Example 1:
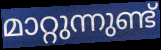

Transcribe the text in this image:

മാറ്റുന്നുണ്ട്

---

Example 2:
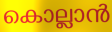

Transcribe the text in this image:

കൊല്ലാൻ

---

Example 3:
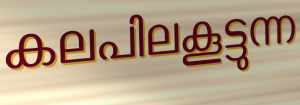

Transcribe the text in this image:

കലപിലകൂട്ടുന്ന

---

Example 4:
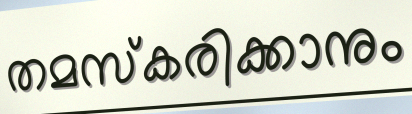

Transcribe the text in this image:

തമസ്കരിക്കാനും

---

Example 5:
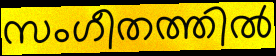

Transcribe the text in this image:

സംഗീതത്തിൽ